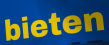
bieten